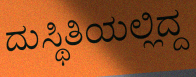
ದುಸ್ಥಿತಿಯಲ್ಲಿದ್ದ